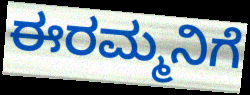
ಈರಮ್ಮನಿಗೆ